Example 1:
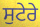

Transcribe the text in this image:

ਸੁਟੇਰੇ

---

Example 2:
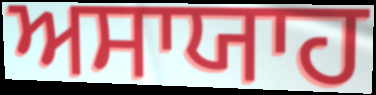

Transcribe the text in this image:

ਅਸਾਯਾਹ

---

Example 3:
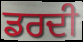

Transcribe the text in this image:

ਡਰਦੀ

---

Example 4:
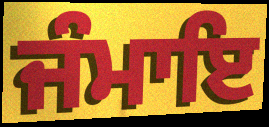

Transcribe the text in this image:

ਜੰਮਾਇ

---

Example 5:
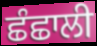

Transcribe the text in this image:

ਛੰਛਾਲੀ